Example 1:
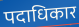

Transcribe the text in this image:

पदाधिकार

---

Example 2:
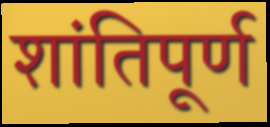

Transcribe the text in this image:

शांतिपूर्ण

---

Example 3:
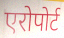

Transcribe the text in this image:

एरोपोर्ट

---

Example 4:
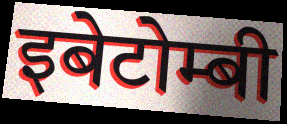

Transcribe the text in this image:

इबेटोम्बी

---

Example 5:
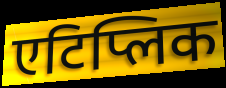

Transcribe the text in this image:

एटिप्लिक